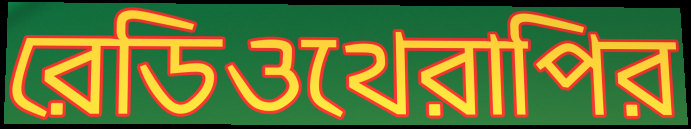
রেডিওথেরাপির